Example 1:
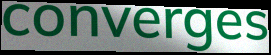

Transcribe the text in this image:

converges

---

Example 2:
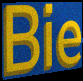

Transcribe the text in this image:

Bie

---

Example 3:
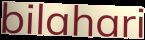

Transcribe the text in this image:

bilahari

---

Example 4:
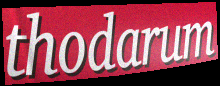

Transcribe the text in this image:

thodarum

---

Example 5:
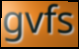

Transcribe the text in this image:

gvfs